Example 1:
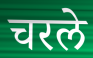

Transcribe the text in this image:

चरले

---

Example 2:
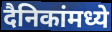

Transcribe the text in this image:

दैनिकांमध्ये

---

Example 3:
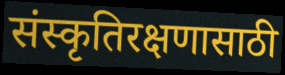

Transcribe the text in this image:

संस्कृतिरक्षणासाठी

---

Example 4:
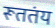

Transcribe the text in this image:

रूततंय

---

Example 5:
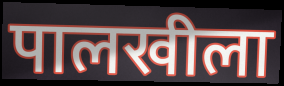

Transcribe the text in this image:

पालखीला